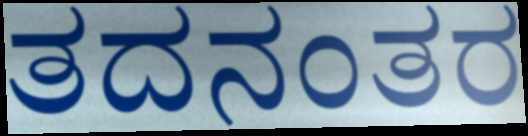
ತದನಂತರ